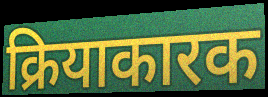
क्रियाकारक